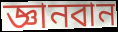
জ্ঞানবান